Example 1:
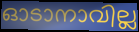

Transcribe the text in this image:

ഓടാനാവില്ല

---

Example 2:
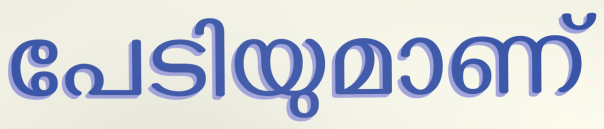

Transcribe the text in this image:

പേടിയുമാണ്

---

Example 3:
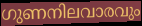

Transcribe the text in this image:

ഗുണനിലവാരവും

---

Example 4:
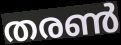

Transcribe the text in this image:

തരൺ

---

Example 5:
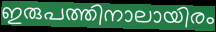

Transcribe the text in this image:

ഇരുപത്തിനാലായിരം